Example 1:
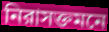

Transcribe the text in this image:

নিরাসক্তমনে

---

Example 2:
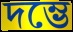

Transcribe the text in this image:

দম্ভে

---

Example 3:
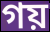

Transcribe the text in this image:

গয়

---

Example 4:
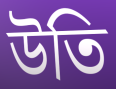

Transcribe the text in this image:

উতি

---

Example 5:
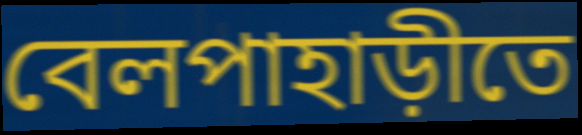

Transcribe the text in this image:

বেলপাহাড়ীতে